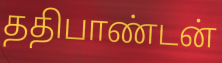
ததிபாண்டன்